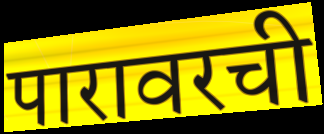
पारावरची